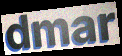
dmar